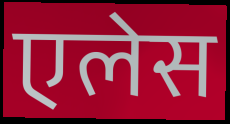
एलेस